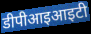
डीपीआइआइटी